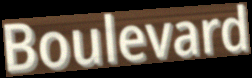
Boulevard